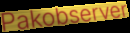
Pakobserver